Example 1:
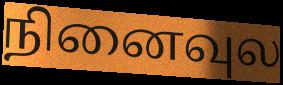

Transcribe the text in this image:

நினைவுல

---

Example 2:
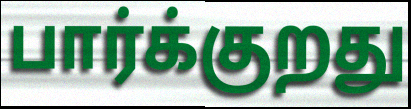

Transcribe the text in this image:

பார்க்குறது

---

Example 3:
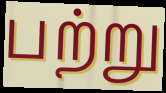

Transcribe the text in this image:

பற்று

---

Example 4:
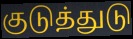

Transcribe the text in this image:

குடுத்துடு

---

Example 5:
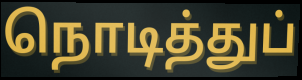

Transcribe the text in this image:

நொடித்துப்